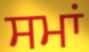
ਸਮਾਂ